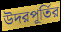
উদরপূর্তির